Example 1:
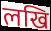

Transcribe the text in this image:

लखि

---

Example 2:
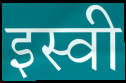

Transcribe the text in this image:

इस्वी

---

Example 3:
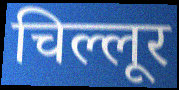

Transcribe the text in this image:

चिल्लूर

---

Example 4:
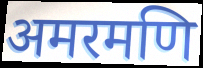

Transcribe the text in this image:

अमरमणि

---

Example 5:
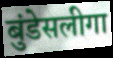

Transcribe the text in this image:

बुंडेसलीगा